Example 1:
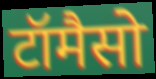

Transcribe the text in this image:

टॉमैसो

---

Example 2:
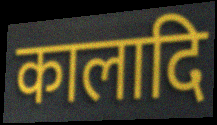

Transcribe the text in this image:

कालादि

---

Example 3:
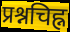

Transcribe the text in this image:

प्रश्नचिह्न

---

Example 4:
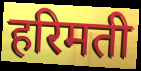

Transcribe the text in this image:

हरिमती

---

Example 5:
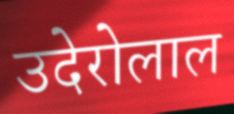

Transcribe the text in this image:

उदेरोलाल